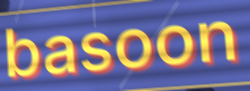
basoon